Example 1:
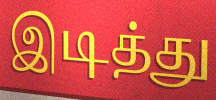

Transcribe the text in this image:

இடித்து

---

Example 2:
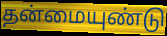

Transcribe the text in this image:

தன்மையுண்டு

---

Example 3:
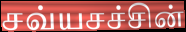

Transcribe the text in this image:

சவ்யசச்சின்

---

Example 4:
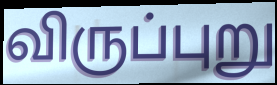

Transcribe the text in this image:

விருப்புறு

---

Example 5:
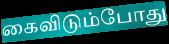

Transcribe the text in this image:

கைவிடும்போது